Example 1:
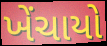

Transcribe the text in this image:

ખેંચાયો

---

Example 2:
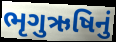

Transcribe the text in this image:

ભૃગુઋષિનું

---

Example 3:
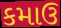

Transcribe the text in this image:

કમાઉ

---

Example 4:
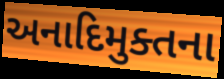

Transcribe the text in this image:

અનાદિમુક્તના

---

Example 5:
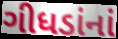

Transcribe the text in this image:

ગીધડાંનાં